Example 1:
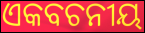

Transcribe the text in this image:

ଏକବଚନୀୟ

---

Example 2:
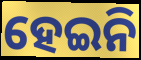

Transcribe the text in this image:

ହେଇନି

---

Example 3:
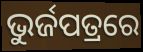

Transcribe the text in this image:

ଭୁର୍ଜପତ୍ରରେ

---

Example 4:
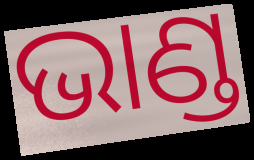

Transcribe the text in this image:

ଭାଣ୍ଡ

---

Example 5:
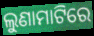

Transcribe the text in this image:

ଲୁଣାମାଟିରେ